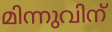
മിന്നുവിന്